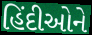
હિંદીઓને